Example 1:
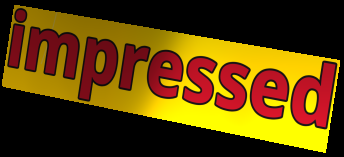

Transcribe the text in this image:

impressed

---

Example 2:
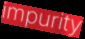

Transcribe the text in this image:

impurity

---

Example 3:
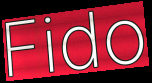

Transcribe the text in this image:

Fido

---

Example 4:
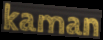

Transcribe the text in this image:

kaman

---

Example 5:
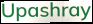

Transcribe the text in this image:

Upashray